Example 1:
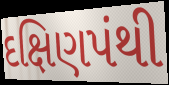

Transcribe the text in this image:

દક્ષિણપંથી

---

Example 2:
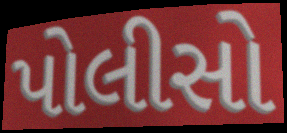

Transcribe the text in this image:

પોલીસો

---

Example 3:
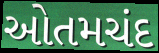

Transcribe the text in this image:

ઓતમચંદ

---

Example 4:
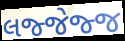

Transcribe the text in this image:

લજ્જેજ્જ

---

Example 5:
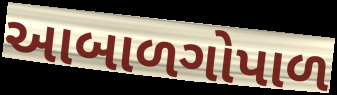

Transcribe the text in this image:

આબાળગોપાળ